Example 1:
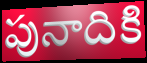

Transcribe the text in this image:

పునాదికి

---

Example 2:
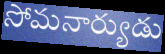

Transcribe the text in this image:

సోమనార్యుడు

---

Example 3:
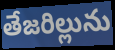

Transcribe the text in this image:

తేజరిల్లును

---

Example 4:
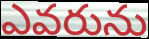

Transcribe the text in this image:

ఎవరును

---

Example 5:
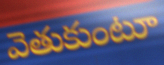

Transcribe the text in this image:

వెతుకుంటూ